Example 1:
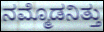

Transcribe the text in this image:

ನಮ್ಮೊಡನಿತ್ತು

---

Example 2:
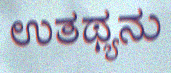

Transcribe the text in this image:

ಉತಥ್ಯನು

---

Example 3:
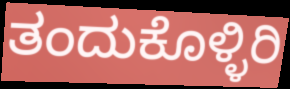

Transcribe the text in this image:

ತಂದುಕೊಳ್ಳಿರಿ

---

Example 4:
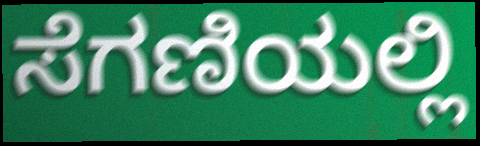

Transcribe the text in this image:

ಸೆಗಣಿಯಲ್ಲಿ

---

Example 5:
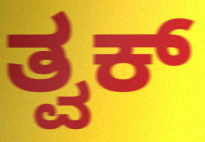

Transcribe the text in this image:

ತ್ವಕ್